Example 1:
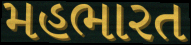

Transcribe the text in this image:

મહભારત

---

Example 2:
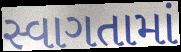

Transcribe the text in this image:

સ્વાગતામાં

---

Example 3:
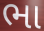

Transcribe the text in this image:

ભા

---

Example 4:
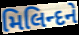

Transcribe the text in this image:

મિલિન્દને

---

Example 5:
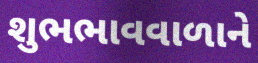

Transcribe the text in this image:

શુભભાવવાળાને